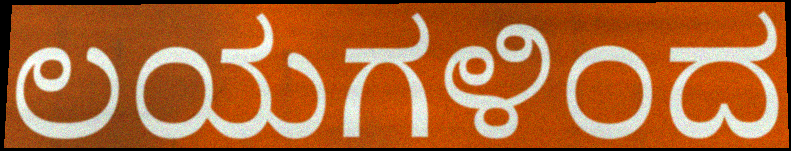
ಲಯಗಳಿಂದ